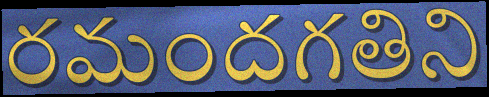
రమందగతిని